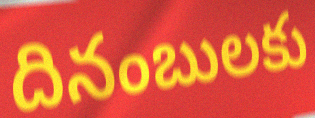
దినంబులకు